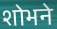
शोभने